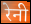
रेनी